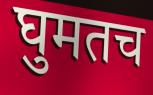
घुमतच